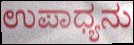
ಉಪಾಧ್ಯನು